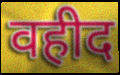
वहीद